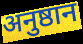
अनुष्ठान